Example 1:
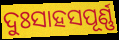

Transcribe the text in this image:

ଦୁଃସାହସପୂର୍ଣ୍ଣ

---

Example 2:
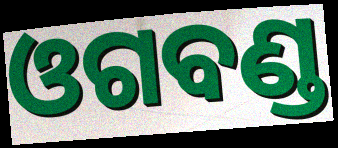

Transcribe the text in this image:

ଓଗବଣ୍ଡ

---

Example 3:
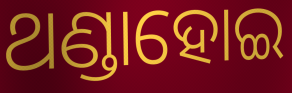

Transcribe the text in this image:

ଥଣ୍ଡାହୋଇ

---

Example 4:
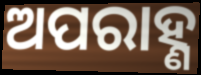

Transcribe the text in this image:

ଅପରାହ୍ଣ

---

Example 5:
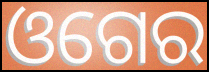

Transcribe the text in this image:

ଓଗେର